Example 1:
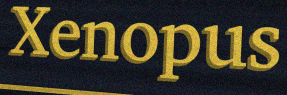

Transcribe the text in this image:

Xenopus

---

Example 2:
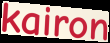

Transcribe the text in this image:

kairon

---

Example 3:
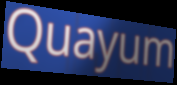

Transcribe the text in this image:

Quayum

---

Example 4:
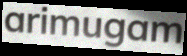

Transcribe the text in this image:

arimugam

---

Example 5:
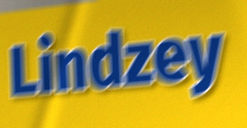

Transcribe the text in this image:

Lindzey